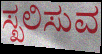
ಸ್ಖಲಿಸುವ